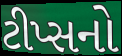
ટીપ્સનો